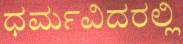
ಧರ್ಮವಿದರಲ್ಲಿ